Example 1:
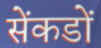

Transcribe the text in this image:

सेंकडों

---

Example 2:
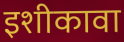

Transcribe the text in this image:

इशीकावा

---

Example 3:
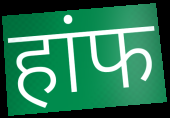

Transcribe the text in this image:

हांफ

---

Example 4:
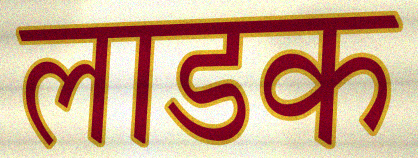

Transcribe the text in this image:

लाडक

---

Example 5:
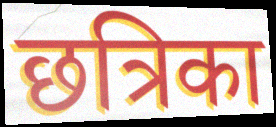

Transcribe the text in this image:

छत्रिका